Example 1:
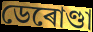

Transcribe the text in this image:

ডেৰোণ্ডা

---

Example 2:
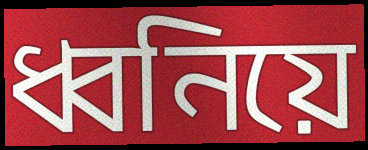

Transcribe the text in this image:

ধ্বনিয়ে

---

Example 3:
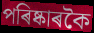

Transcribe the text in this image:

পৰিষ্কাৰকৈ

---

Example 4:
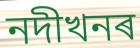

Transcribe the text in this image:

নদীখনৰ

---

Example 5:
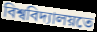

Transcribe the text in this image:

বিশ্ববিদ্যালয়তে